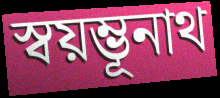
স্বয়ম্ভূনাথ